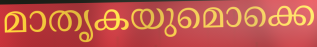
മാതൃകയുമൊക്കെ